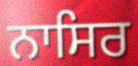
ਨਾਸਿਰ